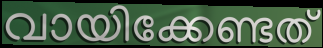
വായിക്കേണ്ടത്